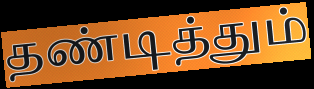
தண்டித்தும்